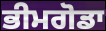
ਭੀਮਗੋਡਾ